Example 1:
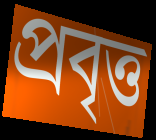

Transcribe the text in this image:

প্ৰবৃত্ত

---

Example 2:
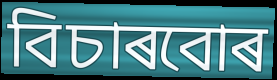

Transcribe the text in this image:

বিচাৰবোৰ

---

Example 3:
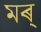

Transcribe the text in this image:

মৰ্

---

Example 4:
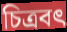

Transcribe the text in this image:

চিত্ৰবৎ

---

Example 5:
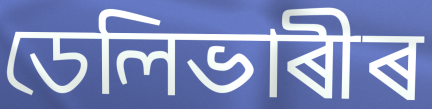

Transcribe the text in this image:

ডেলিভাৰীৰ